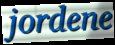
jordene